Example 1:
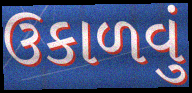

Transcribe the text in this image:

ઉકાળવું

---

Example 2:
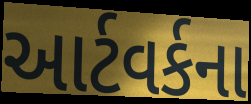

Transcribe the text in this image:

આર્ટવર્કના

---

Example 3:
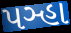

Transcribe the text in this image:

પઞ્હા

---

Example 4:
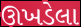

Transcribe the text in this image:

ઊખડેલા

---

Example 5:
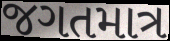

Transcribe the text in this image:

જગતમાત્ર